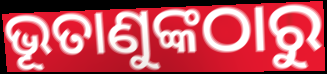
ଭୂତାଣୁଙ୍କଠାରୁ